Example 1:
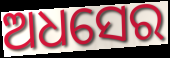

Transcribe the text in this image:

ଅଧସେର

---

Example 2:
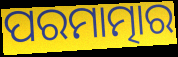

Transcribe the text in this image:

ପରମାତ୍ମାର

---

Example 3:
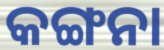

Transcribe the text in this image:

କଙ୍ଗନା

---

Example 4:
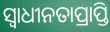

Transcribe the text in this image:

ସ୍ଵାଧୀନତାପ୍ରାପ୍ତି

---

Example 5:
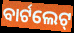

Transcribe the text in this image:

ବାର୍ଟଲେଟ୍